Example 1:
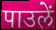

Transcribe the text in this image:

पाउलें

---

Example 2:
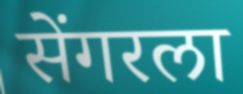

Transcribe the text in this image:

सेंगरला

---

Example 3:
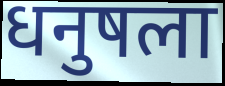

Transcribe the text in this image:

धनुषला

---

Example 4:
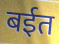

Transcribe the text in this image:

बईत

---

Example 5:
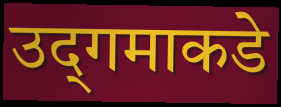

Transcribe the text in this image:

उद्‌गमाकडे